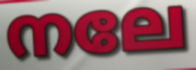
നലേ